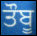
ਤੌਬੂ